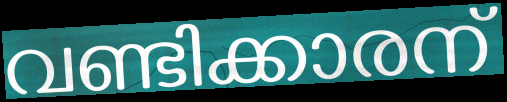
വണ്ടിക്കാരന്